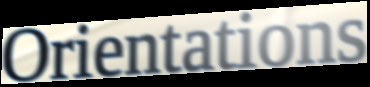
Orientations